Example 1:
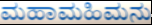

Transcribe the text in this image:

ಮಹಾಮಹಿಮನು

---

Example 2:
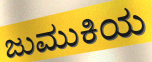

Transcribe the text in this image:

ಜುಮುಕಿಯ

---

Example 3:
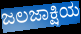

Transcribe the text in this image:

ಜಲಜಾಕ್ಷಿಯ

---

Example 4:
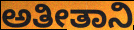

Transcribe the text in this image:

ಅತೀತಾನಿ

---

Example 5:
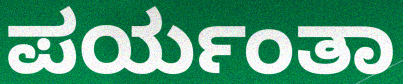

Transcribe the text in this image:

ಪರ್ಯಂತಾ